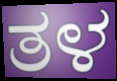
ತಳ